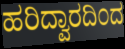
ಹರಿದ್ವಾರದಿಂದ